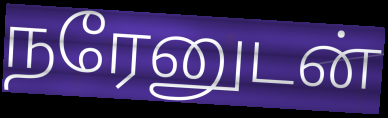
நரேனுடன்